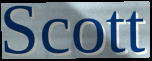
Scott